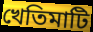
খেতিমাটি